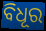
ବିଧୂର